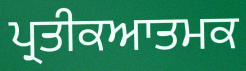
ਪ੍ਰਤੀਕਆਤਮਕ